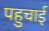
पहुचाई